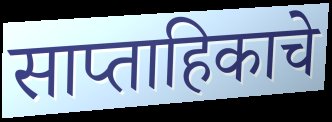
साप्ताहिकाचे